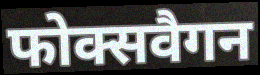
फोक्सवैगन